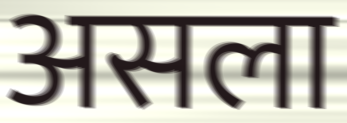
असला